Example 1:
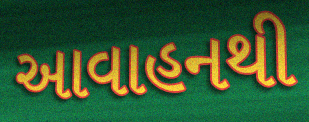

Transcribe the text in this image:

આવાહનથી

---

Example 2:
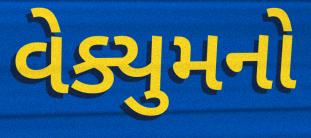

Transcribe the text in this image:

વેક્યુમનો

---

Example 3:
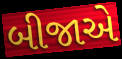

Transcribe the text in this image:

બીજાએ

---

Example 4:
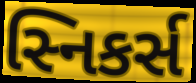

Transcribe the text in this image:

સ્નિકર્સ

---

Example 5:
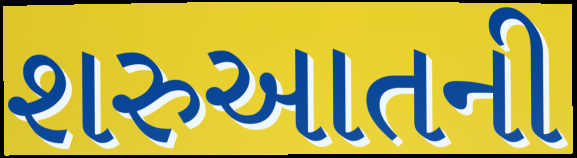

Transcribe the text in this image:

શરુઆતની